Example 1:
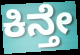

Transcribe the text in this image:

ಕಿನ್ತೇ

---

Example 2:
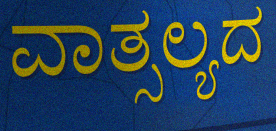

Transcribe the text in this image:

ವಾತ್ಸಲ್ಯದ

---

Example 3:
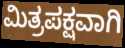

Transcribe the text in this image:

ಮಿತ್ರಪಕ್ಷವಾಗಿ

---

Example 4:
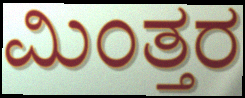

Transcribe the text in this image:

ಮಿಂತ್ತರ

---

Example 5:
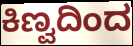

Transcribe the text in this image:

ಕಿಣ್ವದಿಂದ